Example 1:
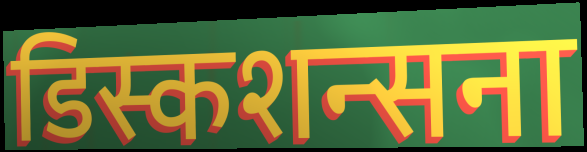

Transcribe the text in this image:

डिस्कशन्सना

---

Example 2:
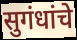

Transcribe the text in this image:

सुगंधांचे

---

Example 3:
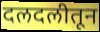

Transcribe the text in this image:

दलदलीतून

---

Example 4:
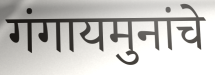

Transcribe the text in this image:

गंगायमुनांचे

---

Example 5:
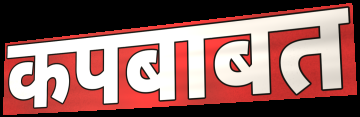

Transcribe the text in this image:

कपबाबत